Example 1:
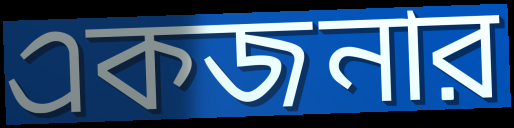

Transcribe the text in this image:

একজনার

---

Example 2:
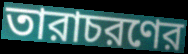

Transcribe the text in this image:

তারাচরণের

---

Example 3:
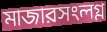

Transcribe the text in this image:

মাজারসংলগ্ন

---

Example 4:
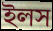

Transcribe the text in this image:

ইলস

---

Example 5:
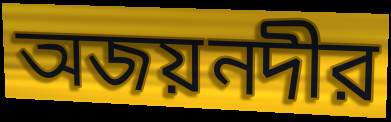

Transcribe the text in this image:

অজয়নদীর